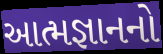
આત્મજ્ઞાનનો